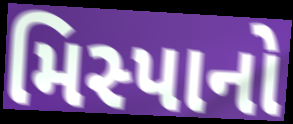
મિસ્પાનો